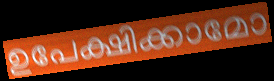
ഉപേക്ഷിക്കാമോ